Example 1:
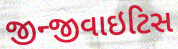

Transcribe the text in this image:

જીન્જીવાઇટિસ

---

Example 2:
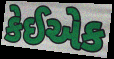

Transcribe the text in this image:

કેઈએક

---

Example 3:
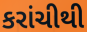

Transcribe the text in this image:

કરાંચીથી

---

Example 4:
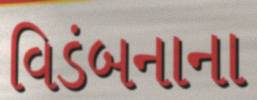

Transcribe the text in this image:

વિડંબનાના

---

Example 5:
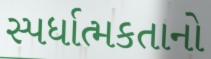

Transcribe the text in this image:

સ્પર્ધાત્મકતાનો